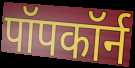
पॉपकॉर्न